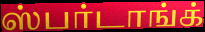
ஸ்பர்டாங்க்